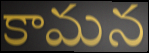
కామన